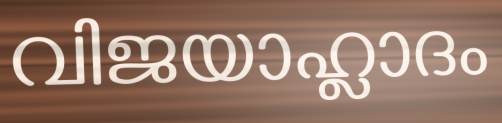
വിജയാഹ്ലാദം